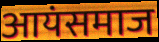
आयंसमाज